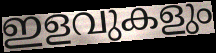
ഇളവുകളും